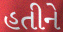
હતીને